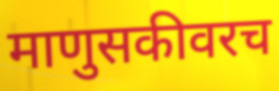
माणुसकीवरच